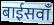
बाईसवाँ